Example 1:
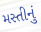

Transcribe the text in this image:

મસ્તીનું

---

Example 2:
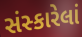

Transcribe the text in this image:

સંસ્કારેલાં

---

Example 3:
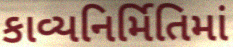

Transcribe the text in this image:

કાવ્યનિર્મિતિમાં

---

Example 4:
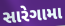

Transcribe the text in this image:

સારેગામા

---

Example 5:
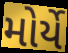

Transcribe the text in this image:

મોર્યે